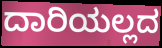
ದಾರಿಯಲ್ಲದ